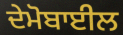
ਦੇਮੋਬਾਈਲ